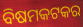
ବିଷମକଟକର